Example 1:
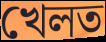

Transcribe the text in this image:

খেলত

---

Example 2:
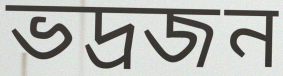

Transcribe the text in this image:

ভদ্রজন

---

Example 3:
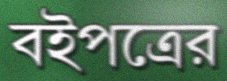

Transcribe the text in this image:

বইপত্রের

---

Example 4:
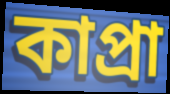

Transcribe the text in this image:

কাপ্রা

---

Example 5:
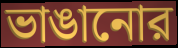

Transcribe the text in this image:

ভাঙানোর